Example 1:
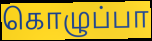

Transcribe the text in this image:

கொழுப்பா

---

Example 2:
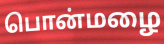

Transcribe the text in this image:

பொன்மழை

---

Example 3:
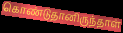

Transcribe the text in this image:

கொண்டுதானிருந்தாள்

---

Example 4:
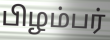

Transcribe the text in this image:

பிழம்பர்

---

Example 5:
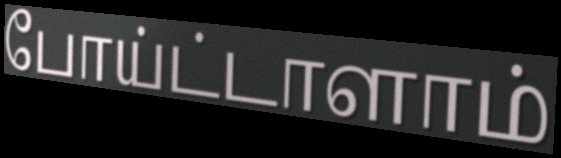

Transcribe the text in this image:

போய்ட்டாளாம்